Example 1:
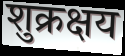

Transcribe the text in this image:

शुक्रक्षय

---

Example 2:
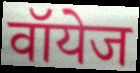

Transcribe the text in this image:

वॉयेज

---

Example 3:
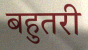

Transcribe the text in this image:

बहुतरी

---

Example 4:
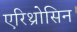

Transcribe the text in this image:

एरिथ्रोसिन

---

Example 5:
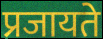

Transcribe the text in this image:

प्रजायते